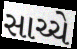
સાચ્ચે